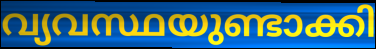
വ്യവസ്ഥയുണ്ടാക്കി